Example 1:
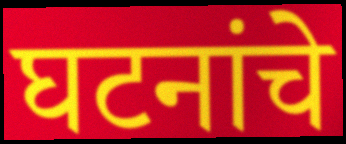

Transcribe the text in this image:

घटनांचे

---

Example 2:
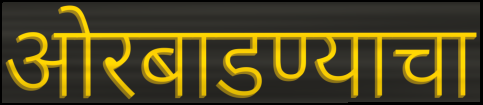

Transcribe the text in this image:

ओरबाडण्याचा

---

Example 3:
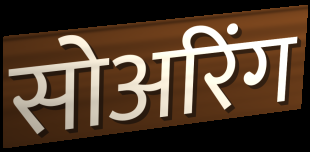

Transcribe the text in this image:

सोअरिंग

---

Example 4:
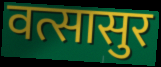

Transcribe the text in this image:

वत्सासुर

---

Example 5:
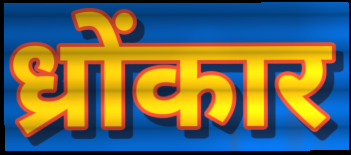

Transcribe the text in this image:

ध्रोंकार